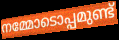
നമ്മോടൊപ്പമുണ്ട്